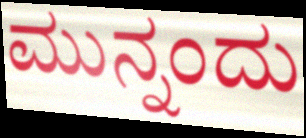
ಮುನ್ನಂದು